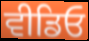
ਵੀਡਿਓ